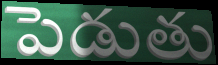
పెడుతు